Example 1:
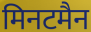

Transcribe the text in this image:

मिनटमैन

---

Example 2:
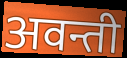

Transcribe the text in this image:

अवन्ती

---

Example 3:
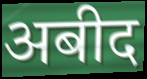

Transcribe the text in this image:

अबीद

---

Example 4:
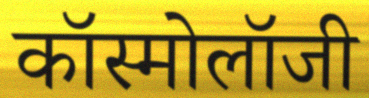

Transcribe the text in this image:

कॉस्मोलॉजी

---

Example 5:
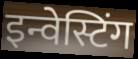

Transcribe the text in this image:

इन्वेस्टिंग